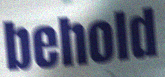
behold